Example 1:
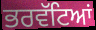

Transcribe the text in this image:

ਭਰਵੱਟਿਆਂ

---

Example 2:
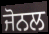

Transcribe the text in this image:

ਜੋਨਲ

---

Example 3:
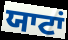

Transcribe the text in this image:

ਯਾਟਾਂ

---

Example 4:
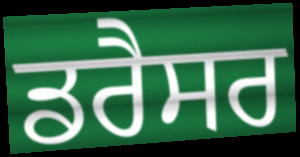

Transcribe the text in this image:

ਡਰੈਸਰ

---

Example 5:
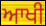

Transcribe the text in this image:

ਆਖੀ